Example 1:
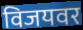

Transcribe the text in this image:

विजयवर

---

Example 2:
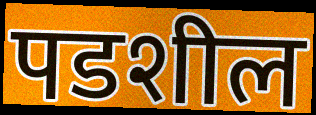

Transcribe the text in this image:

पडशील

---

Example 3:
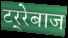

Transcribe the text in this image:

टर्रेबाज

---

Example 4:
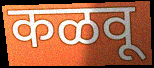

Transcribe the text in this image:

कळवू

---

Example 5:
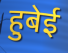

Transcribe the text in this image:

हुबेई